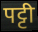
पट्टी